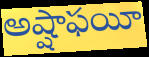
అష్షాఫయీ